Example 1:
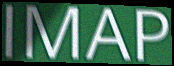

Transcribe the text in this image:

IMAP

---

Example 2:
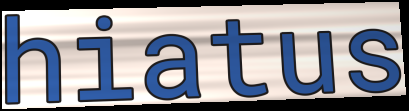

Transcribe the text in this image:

hiatus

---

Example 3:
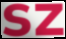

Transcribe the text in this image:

sz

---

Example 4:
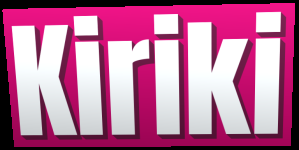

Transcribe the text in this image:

Kiriki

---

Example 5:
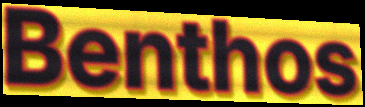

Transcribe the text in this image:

Benthos